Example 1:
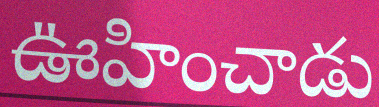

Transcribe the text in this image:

ఊహించాడు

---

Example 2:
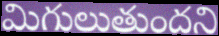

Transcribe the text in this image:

మిగులుతుందని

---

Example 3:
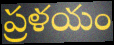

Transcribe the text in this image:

ప్రళయం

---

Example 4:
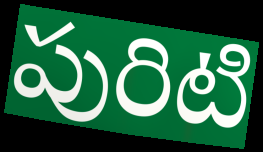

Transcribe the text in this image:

పురిటి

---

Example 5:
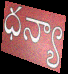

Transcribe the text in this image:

ధన్యా